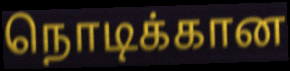
நொடிக்கான